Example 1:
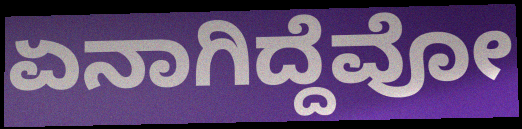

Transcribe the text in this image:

ಏನಾಗಿದ್ದೆವೋ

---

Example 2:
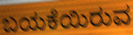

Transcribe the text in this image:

ಬಯಕೆಯಿರುವ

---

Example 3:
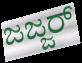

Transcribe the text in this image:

ಜಜ್ಜರ್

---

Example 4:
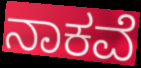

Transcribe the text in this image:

ನಾಕವೆ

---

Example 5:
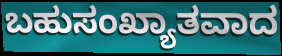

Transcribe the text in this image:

ಬಹುಸಂಖ್ಯಾತವಾದ